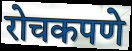
रोचकपणे